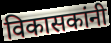
विकासकांनी